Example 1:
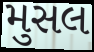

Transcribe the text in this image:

મુસલ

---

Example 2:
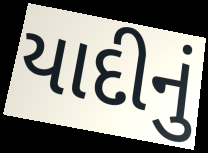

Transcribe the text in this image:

યાદીનું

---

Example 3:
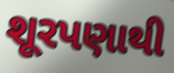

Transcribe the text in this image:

શૂરપણાથી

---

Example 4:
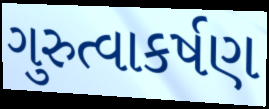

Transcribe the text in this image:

ગુરુત્વાકર્ષણ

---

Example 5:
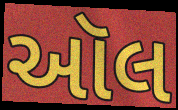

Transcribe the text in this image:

ઑલ